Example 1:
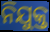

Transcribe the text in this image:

ନିଯୁକ୍ତ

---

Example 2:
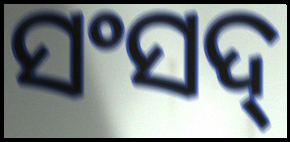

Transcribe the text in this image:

ସଂସଦ୍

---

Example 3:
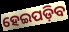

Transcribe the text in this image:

ହେଇପଡ଼ିବ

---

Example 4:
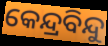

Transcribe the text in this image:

କେନ୍ଦ୍ରବିନ୍ଦୁ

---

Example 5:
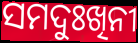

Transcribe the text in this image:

ସମଦୁଃଖିନୀ